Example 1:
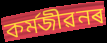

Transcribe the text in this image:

কৰ্মজীৱনৰ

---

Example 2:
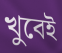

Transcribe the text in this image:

খুবেই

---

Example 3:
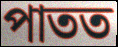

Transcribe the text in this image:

পাতত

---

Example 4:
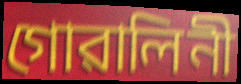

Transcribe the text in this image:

গোৱালিনী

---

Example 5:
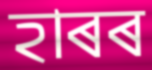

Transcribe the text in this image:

হাৰৰ